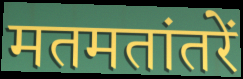
मतमतांतरें